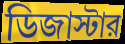
ডিজাস্টার